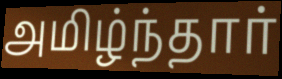
அமிழ்ந்தார்